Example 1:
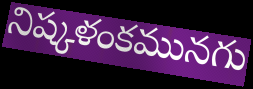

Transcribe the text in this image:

నిష్కళంకమునగు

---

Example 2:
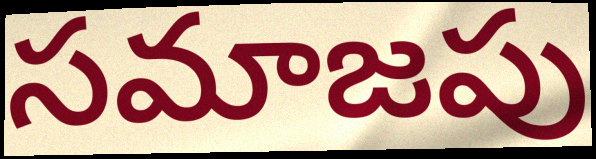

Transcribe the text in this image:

సమాజపు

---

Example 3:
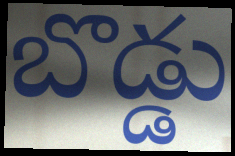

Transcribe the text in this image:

బొడ్డు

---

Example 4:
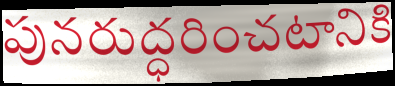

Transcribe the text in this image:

పునరుద్ధరించటానికి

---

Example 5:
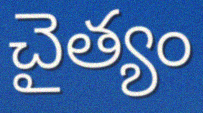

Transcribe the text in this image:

చైత్యం